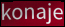
konaje